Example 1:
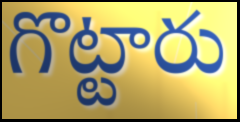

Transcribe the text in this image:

గొట్టారు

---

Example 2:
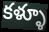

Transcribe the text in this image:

కళ్ళూ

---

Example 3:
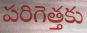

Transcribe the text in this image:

పరిగెత్తకు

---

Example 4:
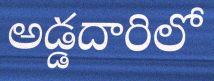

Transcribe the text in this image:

అడ్డదారిలో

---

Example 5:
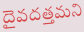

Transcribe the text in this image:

దైవదత్తమని